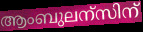
ആംബുലന്സിന്